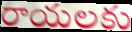
రాయలకు